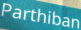
Parthiban